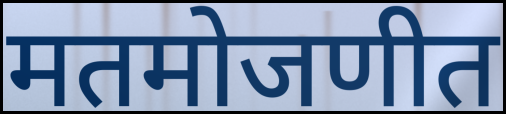
मतमोजणीत